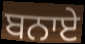
ਬਨਾਏ